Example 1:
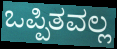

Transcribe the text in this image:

ಒಪ್ಪಿತವಲ್ಲ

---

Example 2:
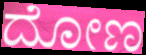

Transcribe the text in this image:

ದೋಣ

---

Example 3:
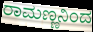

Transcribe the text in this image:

ರಾಮಣ್ಣನಿಂದ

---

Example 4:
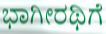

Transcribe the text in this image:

ಭಾಗೀರಥಿಗೆ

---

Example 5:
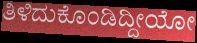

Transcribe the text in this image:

ತಿಳಿದುಕೊಂಡಿದ್ದೀಯೋ